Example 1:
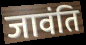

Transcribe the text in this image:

जावंति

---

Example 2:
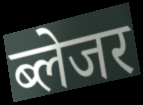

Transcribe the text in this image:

ब्लेजर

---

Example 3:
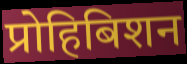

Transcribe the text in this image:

प्रोहिबिशन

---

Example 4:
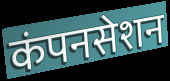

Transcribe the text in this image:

कंपनसेशन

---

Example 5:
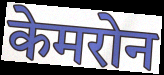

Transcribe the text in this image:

केमरोन